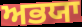
ਅਭਯਾ